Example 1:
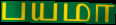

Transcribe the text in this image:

பயமா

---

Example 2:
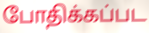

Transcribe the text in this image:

போதிக்கப்பட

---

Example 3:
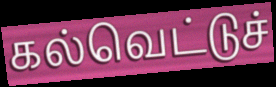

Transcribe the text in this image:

கல்வெட்டுச்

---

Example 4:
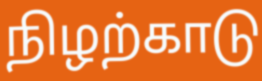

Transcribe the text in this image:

நிழற்காடு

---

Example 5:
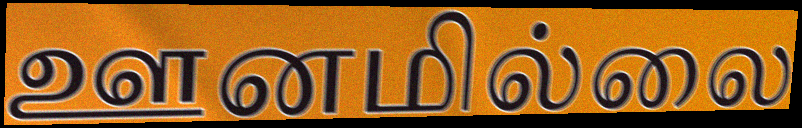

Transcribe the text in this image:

ஊனமில்லை